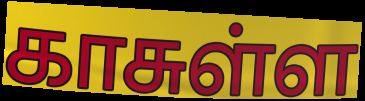
காசுள்ள